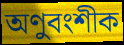
অণুবংশীক